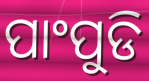
ପାଂପୁଡି